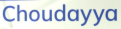
Choudayya